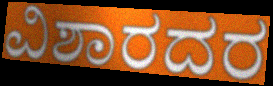
ವಿಶಾರದರ